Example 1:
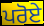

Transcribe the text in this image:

ਪਰੋਏ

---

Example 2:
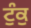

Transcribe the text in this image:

ਟੁੰਕੁ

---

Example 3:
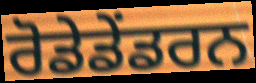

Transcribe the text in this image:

ਰੋਡੇਡੇਂਡਰਨ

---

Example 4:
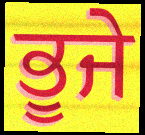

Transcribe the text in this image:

ਭੂਜੇ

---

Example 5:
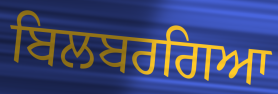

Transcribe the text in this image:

ਬਿਲਬਰਗਿਆ